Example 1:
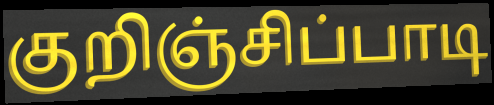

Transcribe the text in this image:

குறிஞ்சிப்பாடி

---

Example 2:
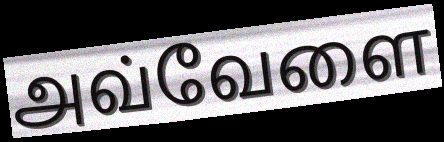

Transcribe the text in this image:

அவ்வேளை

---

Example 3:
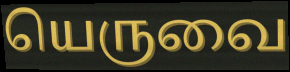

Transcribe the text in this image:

யெருவை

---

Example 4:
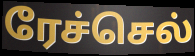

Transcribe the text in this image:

ரேச்செல்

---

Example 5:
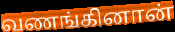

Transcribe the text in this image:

வணங்கினான்